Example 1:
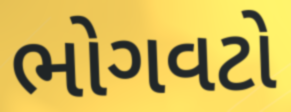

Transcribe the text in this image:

ભોગવટો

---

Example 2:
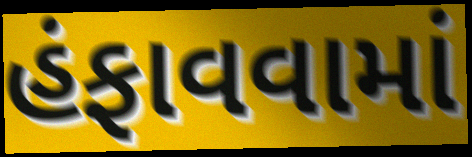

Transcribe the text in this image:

હંફાવવામાં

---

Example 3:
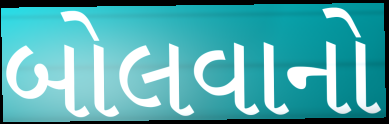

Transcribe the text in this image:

બોલવાનો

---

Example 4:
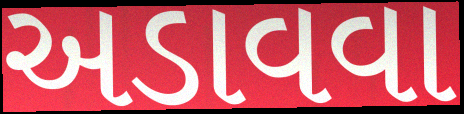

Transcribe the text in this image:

અડાવવા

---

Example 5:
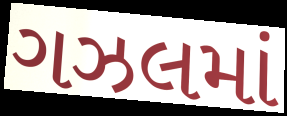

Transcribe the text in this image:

ગઝલમાં